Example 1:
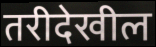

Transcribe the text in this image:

तरीदेखील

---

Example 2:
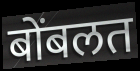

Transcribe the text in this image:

बोंबलत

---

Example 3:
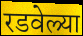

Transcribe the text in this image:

रडवेल्या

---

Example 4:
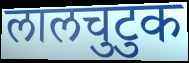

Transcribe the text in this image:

लालचुटुक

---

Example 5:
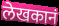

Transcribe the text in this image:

लेखकानं